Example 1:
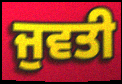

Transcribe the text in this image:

ਜੁਵਤੀ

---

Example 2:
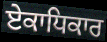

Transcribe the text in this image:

ਏਕਾਧਿਕਾਰ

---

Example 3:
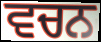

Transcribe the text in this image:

ਵਚਨ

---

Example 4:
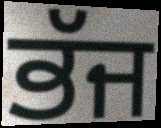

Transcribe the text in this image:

ਭੱਜ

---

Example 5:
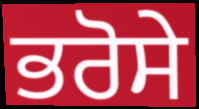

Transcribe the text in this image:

ਭਰੋਸੇ